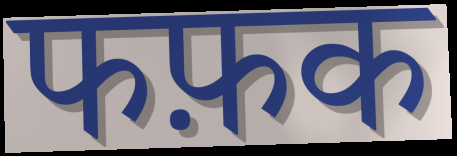
फफ़क